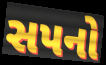
સપનો